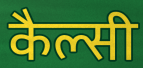
कैल्सी